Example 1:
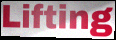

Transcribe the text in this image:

Lifting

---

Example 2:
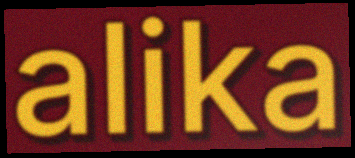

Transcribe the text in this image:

alika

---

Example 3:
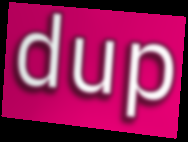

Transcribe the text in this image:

dup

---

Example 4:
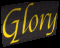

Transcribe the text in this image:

Glory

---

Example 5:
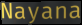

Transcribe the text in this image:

Nayana